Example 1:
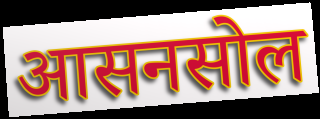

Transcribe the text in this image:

आसनसोल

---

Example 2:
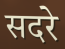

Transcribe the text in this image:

सदरे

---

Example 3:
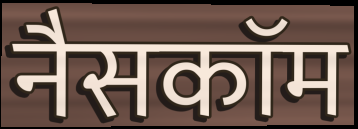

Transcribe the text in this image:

नैसकॉम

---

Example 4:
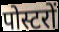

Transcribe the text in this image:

पोस्टरों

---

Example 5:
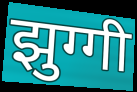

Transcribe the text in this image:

झुग्गी